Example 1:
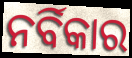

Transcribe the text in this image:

ନର୍ବିକାର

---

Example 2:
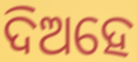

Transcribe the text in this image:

ଦିଅହେ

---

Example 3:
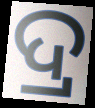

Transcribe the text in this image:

ଦ୍ର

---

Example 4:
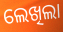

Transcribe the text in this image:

ଲେଖିଲା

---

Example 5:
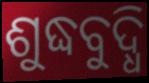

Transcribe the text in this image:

ଶୁଦ୍ଧବୁଦ୍ଧି